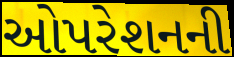
ઓપરેશનની